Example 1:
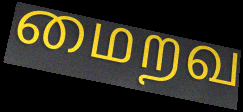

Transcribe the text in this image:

மைறவ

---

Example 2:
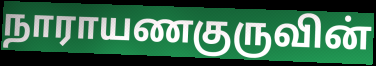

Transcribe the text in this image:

நாராயணகுருவின்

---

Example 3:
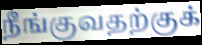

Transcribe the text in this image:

நீங்குவதற்குக்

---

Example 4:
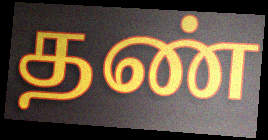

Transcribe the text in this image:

தண்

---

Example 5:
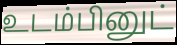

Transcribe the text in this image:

உடம்பினுட்